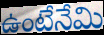
ఉంటేనేమి